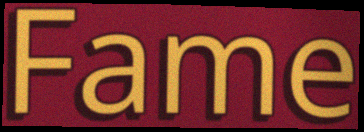
Fame